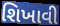
શિખાવી